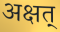
अक्षत्